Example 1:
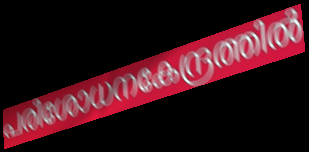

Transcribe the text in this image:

പരിശോധനകേന്ദ്രത്തിൽ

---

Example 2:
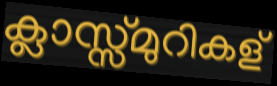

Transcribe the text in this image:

ക്ലാസ്സ്മുറികള്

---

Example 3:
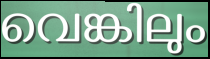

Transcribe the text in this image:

വെങ്കിലും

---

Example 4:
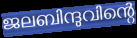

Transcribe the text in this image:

ജലബിന്ദുവിന്റെ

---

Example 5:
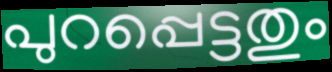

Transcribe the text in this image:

പുറപ്പെട്ടതും